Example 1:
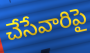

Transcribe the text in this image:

చేసేవారిపై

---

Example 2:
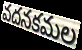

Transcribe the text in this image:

వదనకమల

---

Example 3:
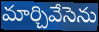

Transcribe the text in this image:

మార్చివేసెను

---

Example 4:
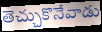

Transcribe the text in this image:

తెచ్చుకొనేవాడు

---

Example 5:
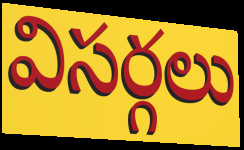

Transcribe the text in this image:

విసర్గలు